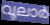
വൂലാർ